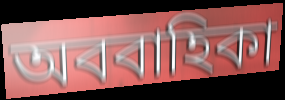
অববাহিকা